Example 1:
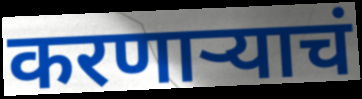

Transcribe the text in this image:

करणाऱ्याचं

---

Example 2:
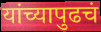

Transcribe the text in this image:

यांच्यापुढचं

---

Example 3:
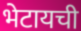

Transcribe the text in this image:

भेटायची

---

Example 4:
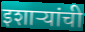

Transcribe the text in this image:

इशाऱ्यांची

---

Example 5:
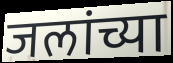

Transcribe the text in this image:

जलांच्या